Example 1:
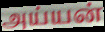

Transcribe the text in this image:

அய்யன்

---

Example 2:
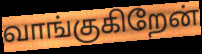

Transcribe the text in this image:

வாங்குகிறேன்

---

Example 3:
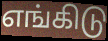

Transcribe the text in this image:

எங்கிடு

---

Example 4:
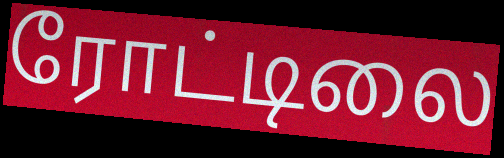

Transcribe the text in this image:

ரோட்டிலை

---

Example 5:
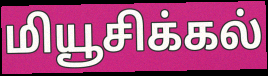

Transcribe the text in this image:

மியூசிக்கல்